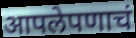
आपलेपणाचं